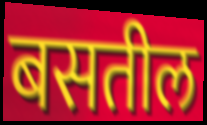
बसतील